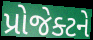
પ્રોજેક્ટને